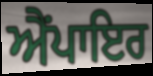
ਐਂਪਾਇਰ